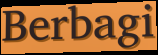
Berbagi